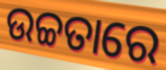
ଉଚ୍ଚତାରେ